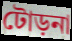
টোড়না